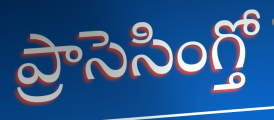
ప్రాసెసింగ్తో